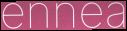
ennea